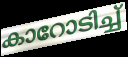
കാറോടിച്ച്